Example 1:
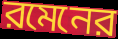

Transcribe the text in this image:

রমেনের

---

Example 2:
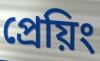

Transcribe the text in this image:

প্রেয়িং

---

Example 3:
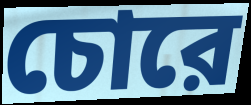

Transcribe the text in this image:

চোরে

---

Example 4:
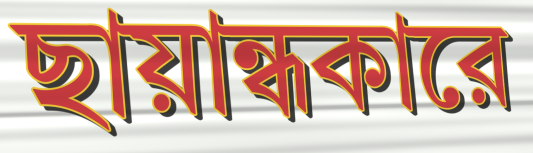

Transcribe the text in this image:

ছায়ান্ধকারে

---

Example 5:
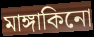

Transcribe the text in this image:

মাঙ্গাকিনো